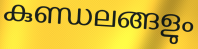
കുണ്ഡലങ്ങളും